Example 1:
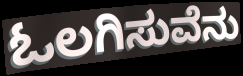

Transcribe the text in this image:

ಓಲಗಿಸುವೆನು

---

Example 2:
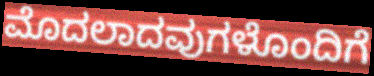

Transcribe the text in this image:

ಮೊದಲಾದವುಗಳೊಂದಿಗೆ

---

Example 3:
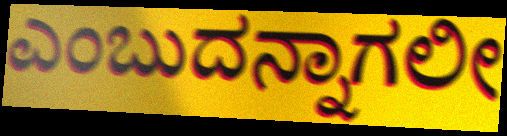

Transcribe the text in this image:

ಎಂಬುದನ್ನಾಗಲೀ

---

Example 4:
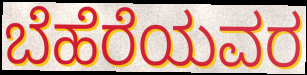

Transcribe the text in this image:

ಬೆಹೆರೆಯವರ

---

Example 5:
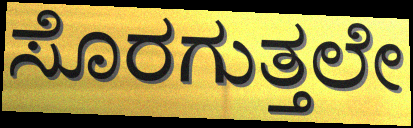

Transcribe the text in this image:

ಸೊರಗುತ್ತಲೇ